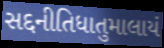
સદ્દનીતિધાતુમાલાયં